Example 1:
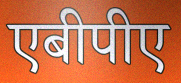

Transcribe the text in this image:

एबीपीए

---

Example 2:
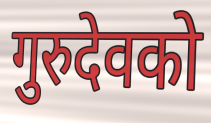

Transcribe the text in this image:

गुरुदेवको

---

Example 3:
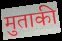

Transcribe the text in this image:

मुताकी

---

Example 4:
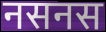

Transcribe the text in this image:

नसनस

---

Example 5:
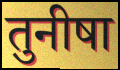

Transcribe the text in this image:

तुनीषा